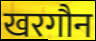
खरगौन